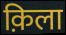
क़िला